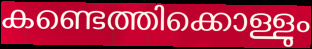
കണ്ടെത്തിക്കൊള്ളും